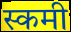
स्कमी